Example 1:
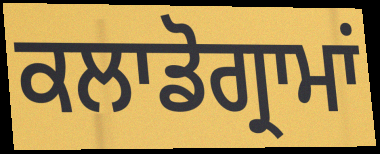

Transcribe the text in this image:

ਕਲਾਡੋਗ੍ਰਾਮਾਂ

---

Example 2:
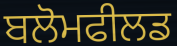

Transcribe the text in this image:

ਬਲੋਮਫੀਲਡ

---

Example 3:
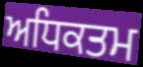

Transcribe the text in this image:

ਅਧਿਕਤਮ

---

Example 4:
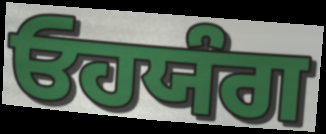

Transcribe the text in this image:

ਓਹਯੰਗ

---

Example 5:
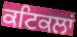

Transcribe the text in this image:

ਕਟਿਕਲਾਂ